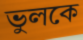
ভুলকে